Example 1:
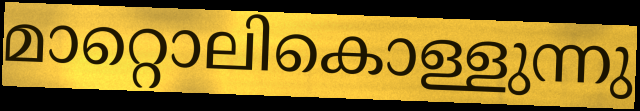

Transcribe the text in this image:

മാറ്റൊലികൊള്ളുന്നു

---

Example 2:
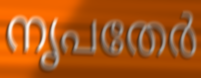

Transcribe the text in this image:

നൃപതേർ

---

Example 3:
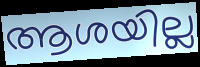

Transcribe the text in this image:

ആശയില്ല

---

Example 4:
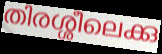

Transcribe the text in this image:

തിരശ്ശീലെക്കു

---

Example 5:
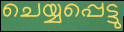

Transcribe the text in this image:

ചെയ്യപ്പെട്ടു